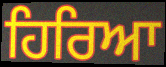
ਹਿਰਿਆ